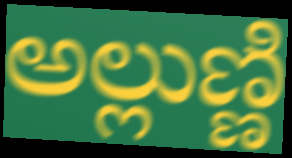
అల్లుణ్ణి